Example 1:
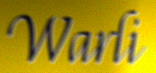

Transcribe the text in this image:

Warli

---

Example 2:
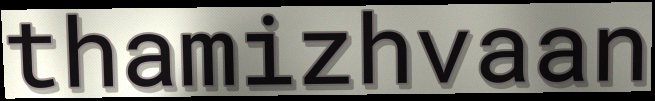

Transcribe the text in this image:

thamizhvaan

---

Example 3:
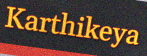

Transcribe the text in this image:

Karthikeya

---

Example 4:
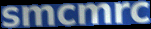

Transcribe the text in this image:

smcmrc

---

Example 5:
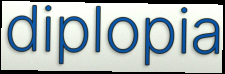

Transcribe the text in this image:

diplopia